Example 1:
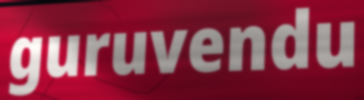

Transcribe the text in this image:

guruvendu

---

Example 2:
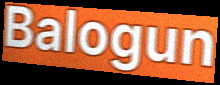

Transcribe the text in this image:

Balogun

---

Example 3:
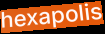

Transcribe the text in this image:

hexapolis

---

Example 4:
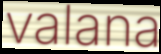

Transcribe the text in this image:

valana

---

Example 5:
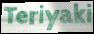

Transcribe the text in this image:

Teriyaki